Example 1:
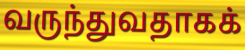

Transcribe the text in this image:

வருந்துவதாகக்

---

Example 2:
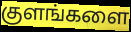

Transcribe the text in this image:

குளங்களை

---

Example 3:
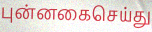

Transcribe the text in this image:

புன்னகைசெய்து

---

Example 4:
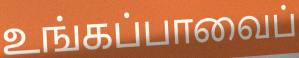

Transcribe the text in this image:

உங்கப்பாவைப்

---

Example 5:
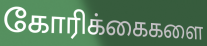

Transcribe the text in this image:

கோரிக்கைகளை